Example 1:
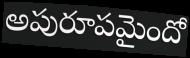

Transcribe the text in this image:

అపురూపమైందో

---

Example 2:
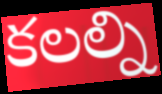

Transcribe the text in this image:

కలల్ని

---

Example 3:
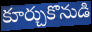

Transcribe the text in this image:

కూర్చుకొనుడి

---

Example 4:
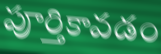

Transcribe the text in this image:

పూర్తికావడం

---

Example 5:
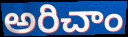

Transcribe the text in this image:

అరిచాం